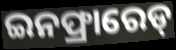
ଇନଫ୍ରାରେଡ୍